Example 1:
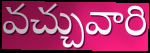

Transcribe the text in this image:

వచ్చువారి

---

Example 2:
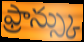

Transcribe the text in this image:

ఫ్రాన్స్కు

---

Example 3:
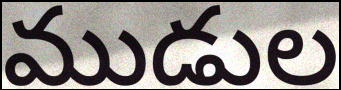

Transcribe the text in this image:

ముడుల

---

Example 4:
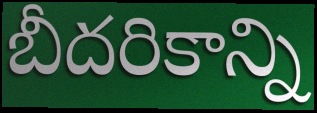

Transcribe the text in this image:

బీదరికాన్ని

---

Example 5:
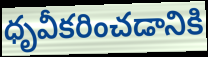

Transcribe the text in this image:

ధృవీకరించడానికి